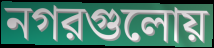
নগরগুলোয়